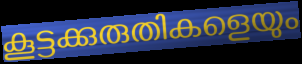
കൂട്ടക്കുരുതികളെയും